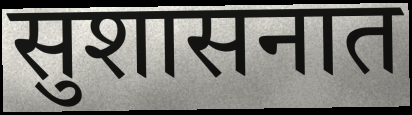
सुशासनात